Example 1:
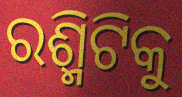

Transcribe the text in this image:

ରଶ୍ମିଟିକୁ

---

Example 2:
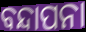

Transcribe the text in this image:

ବନ୍ଦାପନା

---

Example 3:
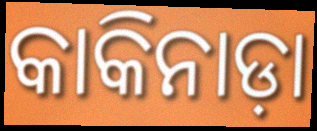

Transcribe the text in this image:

କାକିନାଡ଼ା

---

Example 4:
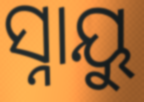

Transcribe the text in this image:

ସ୍ନାୟୁ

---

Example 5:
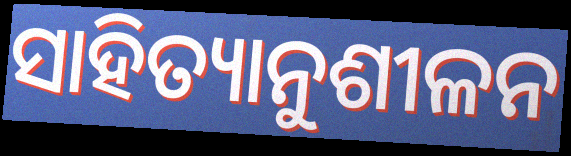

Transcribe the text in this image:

ସାହିତ୍ୟାନୁଶୀଳନ